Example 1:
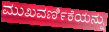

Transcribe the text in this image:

ಮುಖವರ್ಣಿಕೆಯನ್ನು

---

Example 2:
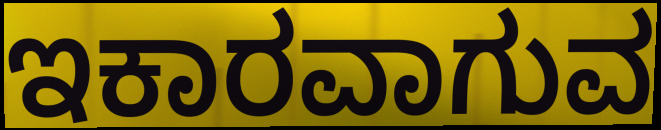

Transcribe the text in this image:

ಇಕಾರವಾಗುವ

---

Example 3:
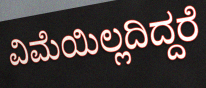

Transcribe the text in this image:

ವಿಮೆಯಿಲ್ಲದಿದ್ದರೆ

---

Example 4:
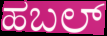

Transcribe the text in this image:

ಹಬಲ್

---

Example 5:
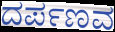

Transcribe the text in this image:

ದರ್ಪಣವ